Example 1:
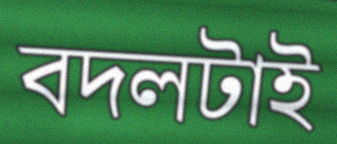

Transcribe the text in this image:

বদলটাই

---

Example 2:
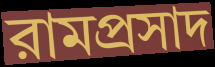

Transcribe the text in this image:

রামপ্রসাদ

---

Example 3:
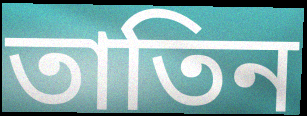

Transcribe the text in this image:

তাতিন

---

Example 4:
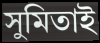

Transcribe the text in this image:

সুমিতাই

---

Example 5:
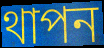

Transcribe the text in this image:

থাপন